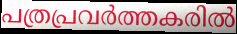
പത്രപ്രവർത്തകരിൽ